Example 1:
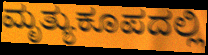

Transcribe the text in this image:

ಮೃತ್ಯುಕೂಪದಲ್ಲಿ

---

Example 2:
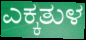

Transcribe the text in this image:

ಎಕ್ಕತುಳ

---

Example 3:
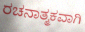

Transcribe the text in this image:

ರಚನಾತ್ಮಕವಾಗಿ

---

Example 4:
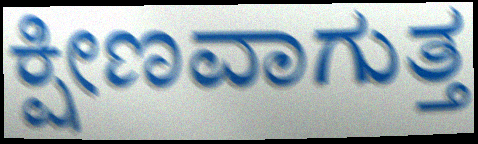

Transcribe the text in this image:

ಕ್ಷೀಣವಾಗುತ್ತ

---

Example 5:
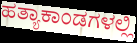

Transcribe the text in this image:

ಹತ್ಯಾಕಾಂಡಗಳಲ್ಲಿ